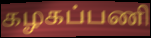
கழகப்பணி